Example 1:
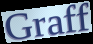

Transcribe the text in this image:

Graff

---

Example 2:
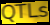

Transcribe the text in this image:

QTLs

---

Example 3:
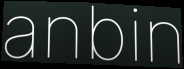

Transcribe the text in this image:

anbin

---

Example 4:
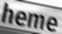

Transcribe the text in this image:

heme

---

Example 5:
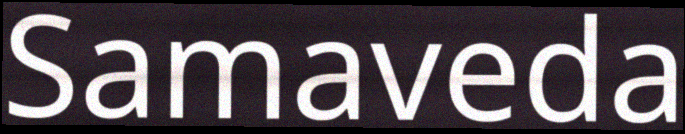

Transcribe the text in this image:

Samaveda